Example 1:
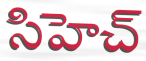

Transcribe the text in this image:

సిహెచ్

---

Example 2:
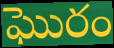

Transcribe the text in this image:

ఘొరం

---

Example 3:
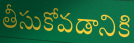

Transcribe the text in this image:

తీసుకోవడానికి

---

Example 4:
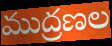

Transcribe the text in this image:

ముద్రణల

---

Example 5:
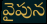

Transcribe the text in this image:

వైపున